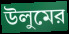
উলুমের